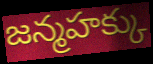
జన్మహక్కు